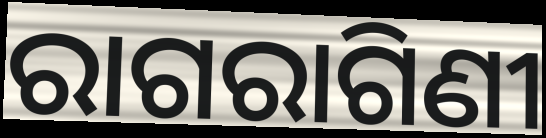
ରାଗରାଗିଣୀ